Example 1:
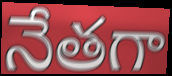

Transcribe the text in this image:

నేతగా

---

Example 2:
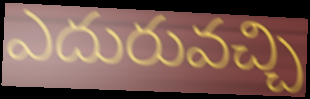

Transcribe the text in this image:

ఎదురువచ్చి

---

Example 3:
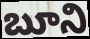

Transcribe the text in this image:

బూని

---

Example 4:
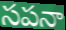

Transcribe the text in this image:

సపనా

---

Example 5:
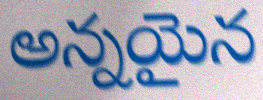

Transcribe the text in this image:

అన్నయైన